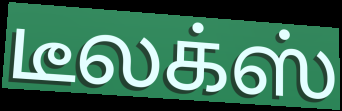
டீலக்ஸ்